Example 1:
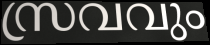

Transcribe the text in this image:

സ്രവവും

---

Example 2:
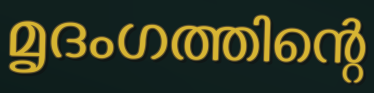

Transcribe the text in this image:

മൃദംഗത്തിന്റെ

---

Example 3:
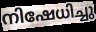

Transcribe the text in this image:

നിഷേധിച്ചു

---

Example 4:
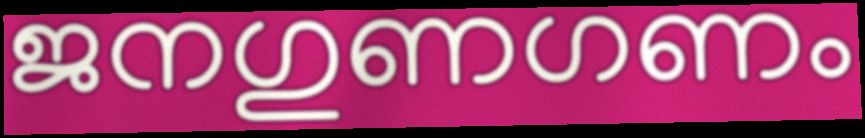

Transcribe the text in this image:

ജനഗുണഗണം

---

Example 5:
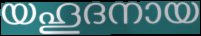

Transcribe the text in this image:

യഹൂദനായ